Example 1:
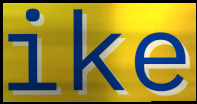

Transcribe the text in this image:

ike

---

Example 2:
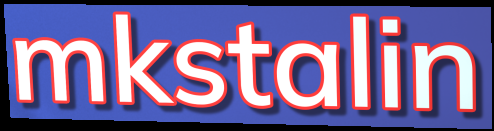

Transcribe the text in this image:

mkstalin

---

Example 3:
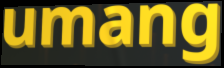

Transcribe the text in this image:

umang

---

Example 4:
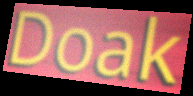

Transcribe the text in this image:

Doak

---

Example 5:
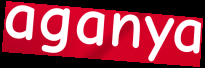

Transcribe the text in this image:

aganya